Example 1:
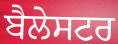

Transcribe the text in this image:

ਬੈਲੇਸਟਰ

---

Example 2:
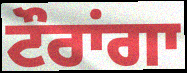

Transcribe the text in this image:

ਟੌਰਾਂਗਾ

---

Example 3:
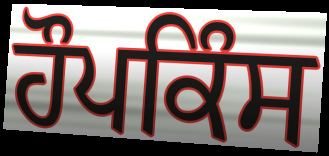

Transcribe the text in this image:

ਹੌਪਕਿੰਸ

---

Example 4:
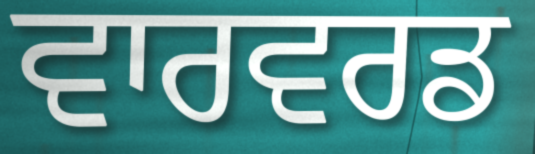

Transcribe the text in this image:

ਵਾਰਵਰਡ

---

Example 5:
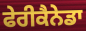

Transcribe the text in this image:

ਫੇਰੀਕੈਨੇਡਾ